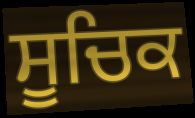
ਸੂਚਿਕ